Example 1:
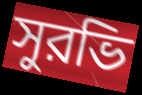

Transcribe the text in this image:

সুরভি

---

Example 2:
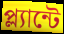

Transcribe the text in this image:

প্ল্যান্টে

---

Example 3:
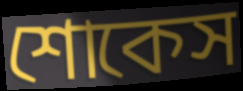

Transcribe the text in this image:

শোকেস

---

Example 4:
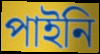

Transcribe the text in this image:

পাইনি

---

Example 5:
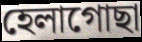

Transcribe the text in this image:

হেলাগোছা